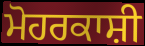
ਮੋਹਰਕਾਸ਼ੀ